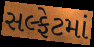
સલ્ફેટમાં